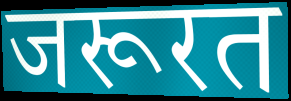
जरूरत